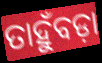
ତାହୁଁବଡ଼ା